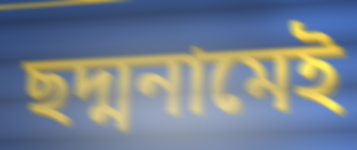
ছদ্মনামেই